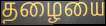
தழையை